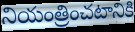
నియంత్రించటానికి